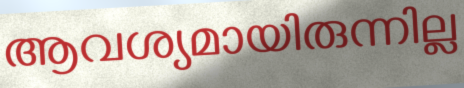
ആവശ്യമായിരുന്നില്ല